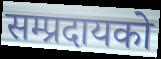
सम्प्रदायको